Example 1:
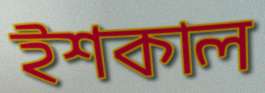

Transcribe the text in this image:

ইশকাল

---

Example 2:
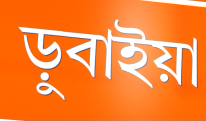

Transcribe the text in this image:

ড়ুবাইয়া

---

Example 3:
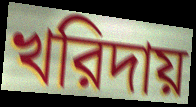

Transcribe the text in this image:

খরিদায়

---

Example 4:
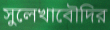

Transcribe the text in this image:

সুলেখাবৌদির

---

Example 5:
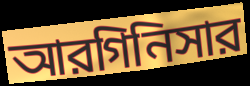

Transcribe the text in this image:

আরগিনিসার